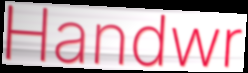
Handwr